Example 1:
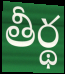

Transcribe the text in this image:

తీర్థ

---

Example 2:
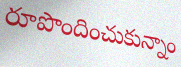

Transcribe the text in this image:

రూపొందించుకున్నాం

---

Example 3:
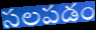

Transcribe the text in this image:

సలపడం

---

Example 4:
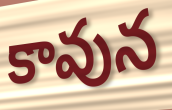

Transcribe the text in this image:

కావున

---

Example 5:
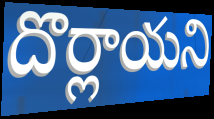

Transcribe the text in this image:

దొర్లాయని